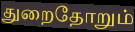
துறைதோறும்